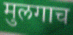
मुलगाच